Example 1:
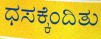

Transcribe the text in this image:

ಧಸಕ್ಕೆಂದಿತು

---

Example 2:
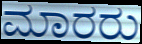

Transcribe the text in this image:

ಮಾರರು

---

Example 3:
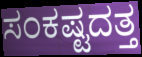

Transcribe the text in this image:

ಸಂಕಷ್ಟದತ್ತ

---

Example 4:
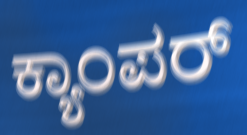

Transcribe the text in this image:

ಕ್ಯಾಂಪರ್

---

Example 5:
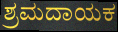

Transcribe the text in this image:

ಶ್ರಮದಾಯಕ